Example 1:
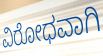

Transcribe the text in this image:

ವಿರೋಧವಾಗಿ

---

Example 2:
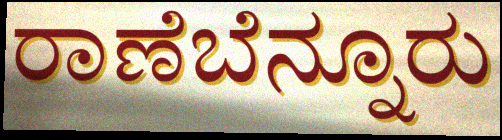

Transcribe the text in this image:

ರಾಣೆಬೆನ್ನೂರು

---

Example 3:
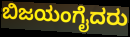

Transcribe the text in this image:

ಬಿಜಯಂಗೈದರು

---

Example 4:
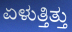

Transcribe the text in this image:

ಏಳುತ್ತಿತ್ತು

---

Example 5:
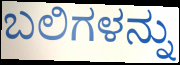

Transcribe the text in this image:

ಬಲಿಗಳನ್ನು